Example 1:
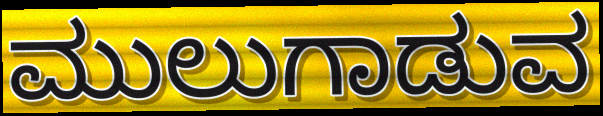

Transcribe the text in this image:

ಮುಲುಗಾಡುವ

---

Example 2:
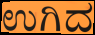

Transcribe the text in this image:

ಉಗಿದ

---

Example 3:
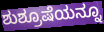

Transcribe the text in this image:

ಶುಶ್ರೂಷೆಯನ್ನೂ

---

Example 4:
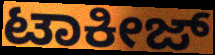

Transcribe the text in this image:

ಟಾಕೀಜ್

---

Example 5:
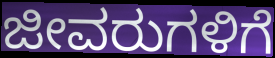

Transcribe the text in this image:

ಜೀವರುಗಳಿಗೆ